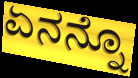
ಏನನ್ನೊ